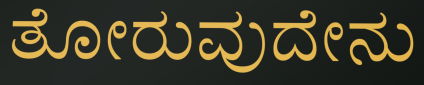
ತೋರುವುದೇನು